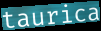
taurica